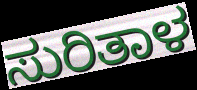
ಸುರಿತಾಳ